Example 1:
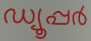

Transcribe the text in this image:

ഡ്യൂപ്പർ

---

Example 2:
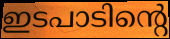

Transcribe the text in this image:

ഇടപാടിന്റെ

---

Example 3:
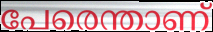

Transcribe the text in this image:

പേരെന്താണ്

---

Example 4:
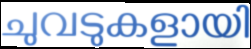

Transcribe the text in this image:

ചുവടുകളായി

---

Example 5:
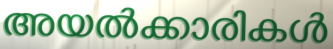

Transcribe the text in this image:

അയൽക്കാരികൾ